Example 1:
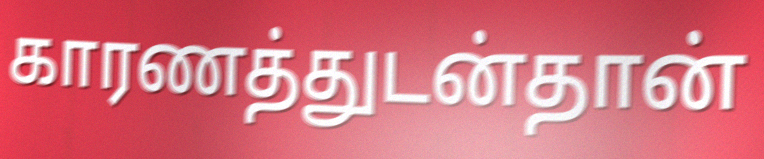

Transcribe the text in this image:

காரணத்துடன்தான்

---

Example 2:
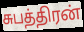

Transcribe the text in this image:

சுபத்திரன்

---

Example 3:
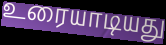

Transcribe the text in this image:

உரையாடியது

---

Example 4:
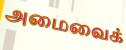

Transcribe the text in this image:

அமைவைக்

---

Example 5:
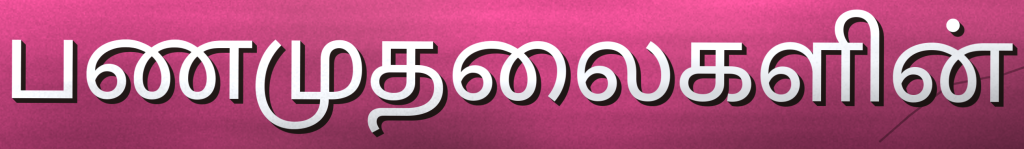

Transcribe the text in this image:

பணமுதலைகளின்